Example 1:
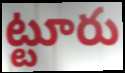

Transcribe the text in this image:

ట్టూరు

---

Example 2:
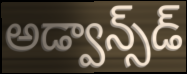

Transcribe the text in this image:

అడ్వాన్స్‌డ్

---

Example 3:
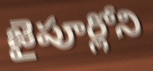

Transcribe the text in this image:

జైపూర్లోని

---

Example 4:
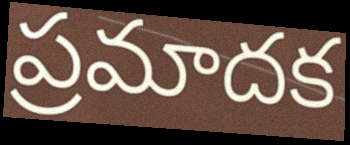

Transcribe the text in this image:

ప్రమాదక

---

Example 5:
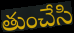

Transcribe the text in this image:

తుంచేసి